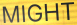
MIGHT